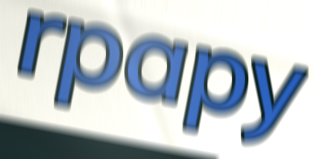
rpapy